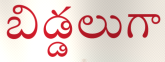
బిడ్డలుగా